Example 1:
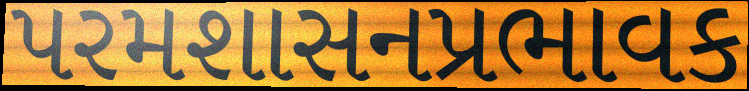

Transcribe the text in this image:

પરમશાસનપ્રભાવક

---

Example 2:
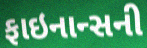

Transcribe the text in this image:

ફાઇનાન્સની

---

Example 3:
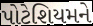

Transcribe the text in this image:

પોટેશિયમને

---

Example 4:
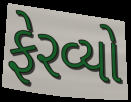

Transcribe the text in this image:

ફેરવ્યો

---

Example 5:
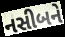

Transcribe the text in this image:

નસીબને